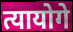
त्यायोगे